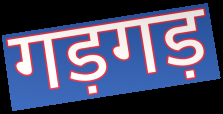
गड़गड़